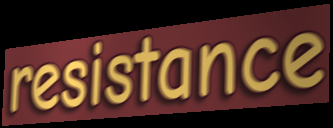
resistance